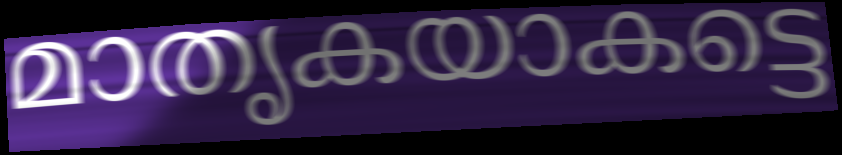
മാതൃകയാകട്ടെ